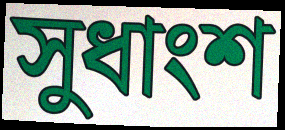
সুধাংশ